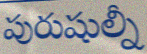
పురుషుల్నీ